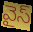
వైస్